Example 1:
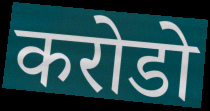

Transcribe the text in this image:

करोडो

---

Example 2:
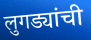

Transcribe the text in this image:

लुगड्यांची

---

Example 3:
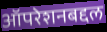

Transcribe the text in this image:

ऑपरेशनबद्दल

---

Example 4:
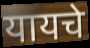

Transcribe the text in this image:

यायचे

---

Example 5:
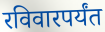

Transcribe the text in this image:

रविवारपर्यंत